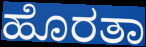
ಹೊರತಾ